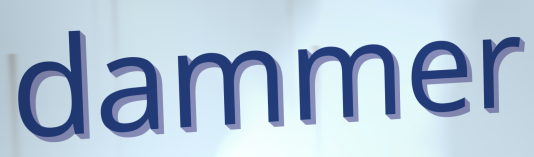
dammer